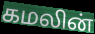
கமலின்